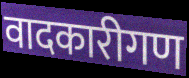
वादकारीगण